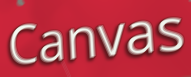
Canvas